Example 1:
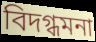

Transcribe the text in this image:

বিদগ্ধমনা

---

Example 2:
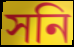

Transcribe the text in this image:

সনি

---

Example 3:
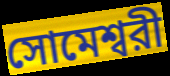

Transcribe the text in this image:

সোমেশ্বরী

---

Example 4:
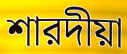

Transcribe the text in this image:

শারদীয়া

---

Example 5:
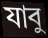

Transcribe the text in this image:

যাবু